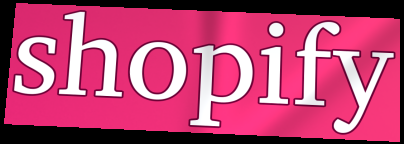
shopify